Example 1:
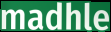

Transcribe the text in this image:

madhle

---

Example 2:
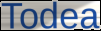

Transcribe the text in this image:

Todea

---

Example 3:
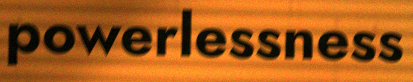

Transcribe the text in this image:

powerlessness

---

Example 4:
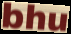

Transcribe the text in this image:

bhu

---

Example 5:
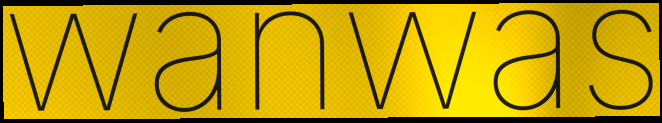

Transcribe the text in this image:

wanwas